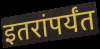
इतरांपर्यंत